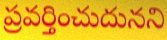
ప్రవర్తించుదునని